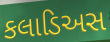
કલાડિઅસ